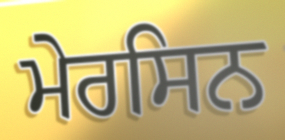
ਮੇਰਸਿਨ